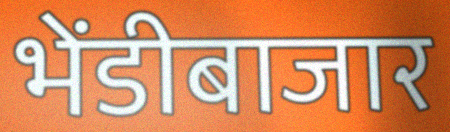
भेंडीबाजार